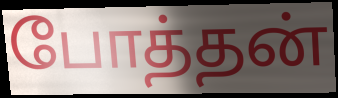
போத்தன்